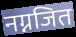
नग्नजित